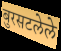
बुरसटलेले